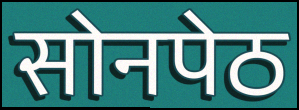
सोनपेठ